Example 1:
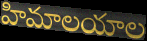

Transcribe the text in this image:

హిమాలయాల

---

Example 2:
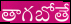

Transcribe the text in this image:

తాగబోతే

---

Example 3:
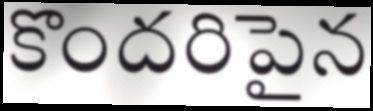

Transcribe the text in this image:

కొందరిపైన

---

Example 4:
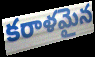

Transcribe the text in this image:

కరాళమైన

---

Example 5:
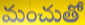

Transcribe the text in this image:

మంచుతో